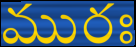
మురః